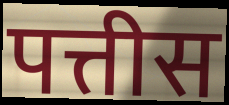
पत्तीस